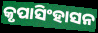
କୃପାସିଂହାସନ